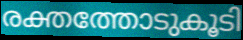
രക്തത്തോടുകൂടി